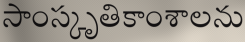
సాంస్కృతికాంశాలను